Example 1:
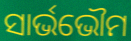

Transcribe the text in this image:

ସାର୍ଭଭୌମ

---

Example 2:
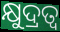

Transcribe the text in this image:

କ୍ଷୁଦ୍ରତ୍ୱ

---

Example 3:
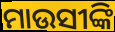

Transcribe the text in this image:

ମାଉସୀଙ୍କି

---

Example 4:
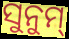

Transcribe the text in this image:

ସୁନୁମ୍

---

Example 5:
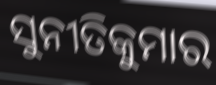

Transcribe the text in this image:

ସୁନୀତିକୁମାର